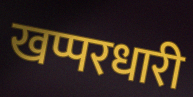
खप्परधारी